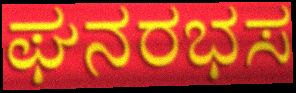
ಘನರಭಸ